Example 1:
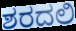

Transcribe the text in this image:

ಶರದಲಿ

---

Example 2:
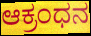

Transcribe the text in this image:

ಆಕ್ರಂಧನ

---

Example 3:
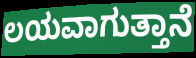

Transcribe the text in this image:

ಲಯವಾಗುತ್ತಾನೆ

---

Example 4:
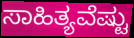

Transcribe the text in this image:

ಸಾಹಿತ್ಯವೆಷ್ಟು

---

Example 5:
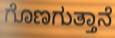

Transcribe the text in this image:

ಗೊಣಗುತ್ತಾನೆ